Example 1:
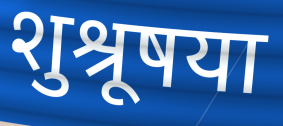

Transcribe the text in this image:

शुश्रूषया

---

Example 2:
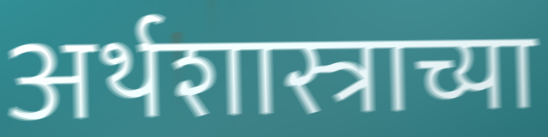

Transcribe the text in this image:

अर्थशास्त्राच्या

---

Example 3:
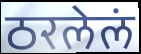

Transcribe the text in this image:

ठरलेलं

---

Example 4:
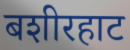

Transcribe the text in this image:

बशीरहाट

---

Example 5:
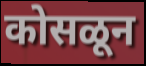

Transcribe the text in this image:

कोसळून